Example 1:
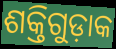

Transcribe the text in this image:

ଶକ୍ତିଗୁଡ଼ାକ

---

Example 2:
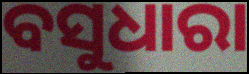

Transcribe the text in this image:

ବସୁଧାରା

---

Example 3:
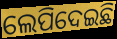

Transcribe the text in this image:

ଲେପିଦେଇଛି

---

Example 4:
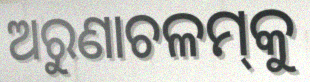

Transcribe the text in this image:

ଅରୁଣାଚଳମ୍‌କୁ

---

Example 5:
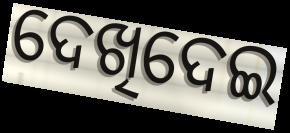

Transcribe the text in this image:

ଦେଖିଦେଇ